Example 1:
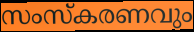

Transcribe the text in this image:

സംസ്കരണവും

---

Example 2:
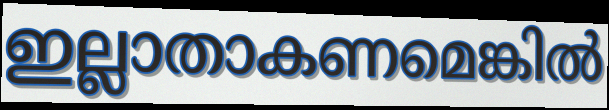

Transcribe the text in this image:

ഇല്ലാതാകണമെങ്കിൽ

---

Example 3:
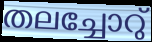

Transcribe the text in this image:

തലച്ചോറു്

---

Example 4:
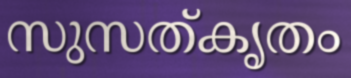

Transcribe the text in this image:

സുസത്കൃതം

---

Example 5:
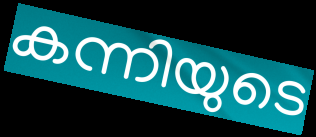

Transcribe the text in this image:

കന്നിയുടെ